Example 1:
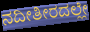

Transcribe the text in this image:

ನದೀತೀರದಲ್ಲೇ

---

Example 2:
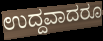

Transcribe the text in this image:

ಉದ್ದವಾದರೂ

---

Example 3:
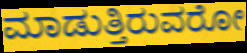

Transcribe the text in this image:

ಮಾಡುತ್ತಿರುವರೋ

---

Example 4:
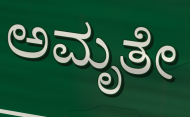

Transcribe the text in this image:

ಅಮೃತೇ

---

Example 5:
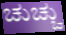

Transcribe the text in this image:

ಚುಚ್ಚು